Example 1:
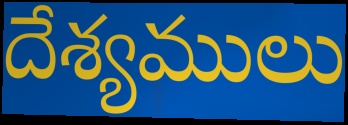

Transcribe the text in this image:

దేశ్యములు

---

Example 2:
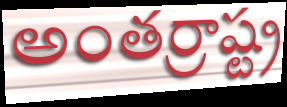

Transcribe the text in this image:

అంతర్రాష్ట్ర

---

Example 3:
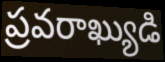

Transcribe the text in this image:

ప్రవరాఖ్యుడి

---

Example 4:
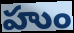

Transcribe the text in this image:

హుం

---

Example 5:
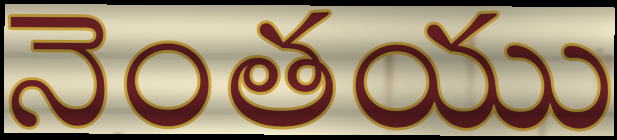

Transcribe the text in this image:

నెంతయు